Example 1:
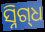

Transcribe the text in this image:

ସ୍ନିଗ୍‌ଧ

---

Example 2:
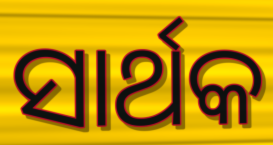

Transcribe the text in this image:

ସାର୍ଥକ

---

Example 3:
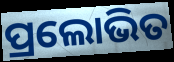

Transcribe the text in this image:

ପ୍ରଲୋଭିତ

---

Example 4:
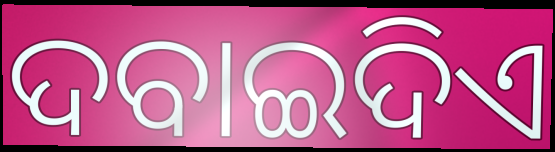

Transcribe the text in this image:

ଦବାଇଦିଏ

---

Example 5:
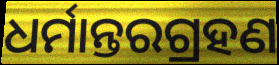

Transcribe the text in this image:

ଧର୍ମାନ୍ତରଗ୍ରହଣ